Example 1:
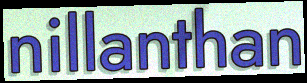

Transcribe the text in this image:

nillanthan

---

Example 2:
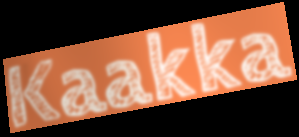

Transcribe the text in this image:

Kaakka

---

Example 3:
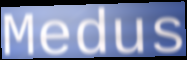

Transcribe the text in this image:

Medus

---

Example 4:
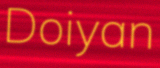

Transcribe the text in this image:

Doiyan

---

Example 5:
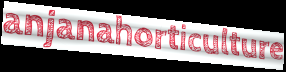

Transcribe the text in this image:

anjanahorticulture